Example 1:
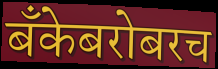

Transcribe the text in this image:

बँकेबरोबरच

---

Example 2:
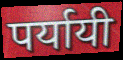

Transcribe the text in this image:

पर्यायी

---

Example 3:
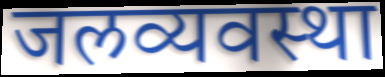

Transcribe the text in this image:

जलव्यवस्था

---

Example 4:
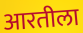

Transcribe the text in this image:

आरतीला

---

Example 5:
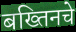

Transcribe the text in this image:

बख्तिनचे